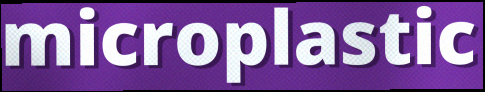
microplastic